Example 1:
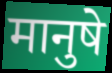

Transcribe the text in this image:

मानुषे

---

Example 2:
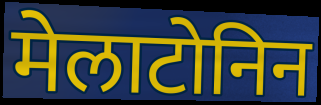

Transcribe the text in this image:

मेलाटोनिन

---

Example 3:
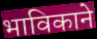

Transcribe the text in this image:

भाविकाने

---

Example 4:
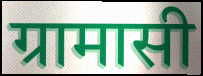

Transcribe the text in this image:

ग्रामासी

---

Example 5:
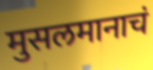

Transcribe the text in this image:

मुसलमानाचं